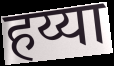
हय्या